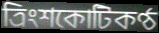
ত্রিংশকোটিকণ্ঠ